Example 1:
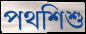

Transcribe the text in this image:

পথশিশু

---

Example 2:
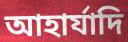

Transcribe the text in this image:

আহার্যাদি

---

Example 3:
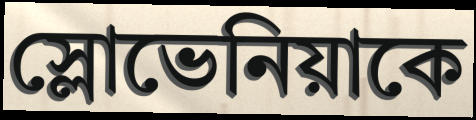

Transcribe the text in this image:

স্লোভেনিয়াকে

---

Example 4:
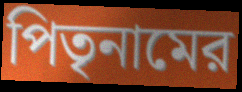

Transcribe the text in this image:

পিতৃনামের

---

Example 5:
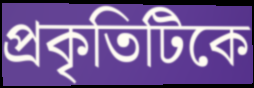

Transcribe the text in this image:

প্রকৃতিটিকে